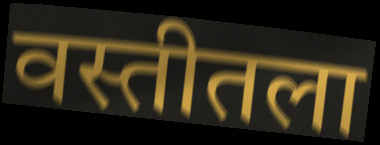
वस्तीतला